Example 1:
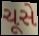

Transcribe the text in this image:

ચૂસે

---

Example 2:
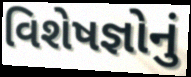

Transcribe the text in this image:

વિશેષજ્ઞોનું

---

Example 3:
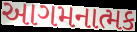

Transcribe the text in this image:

આગમનાત્મક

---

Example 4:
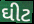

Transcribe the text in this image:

ઘીટ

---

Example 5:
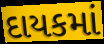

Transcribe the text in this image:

દાયકમાં